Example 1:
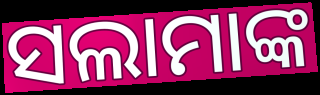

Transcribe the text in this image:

ସଲାମାଙ୍କ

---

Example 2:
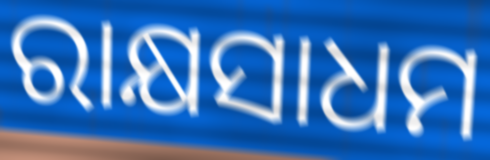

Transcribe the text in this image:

ରାକ୍ଷସାଧମ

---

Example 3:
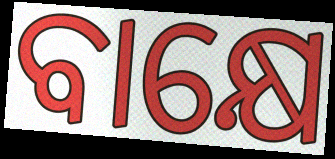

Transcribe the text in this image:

ବାକ୍ଷେ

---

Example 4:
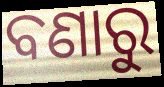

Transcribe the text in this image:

ବଣାରୁ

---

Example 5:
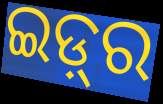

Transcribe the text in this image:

ଇଡ଼୍‍ର